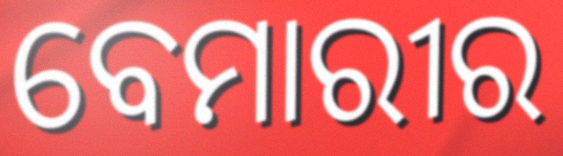
ବେମାରୀର